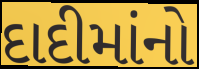
દાદીમાંનો